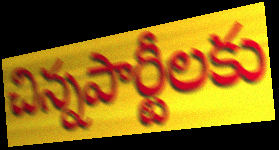
చిన్నపార్టీలకు